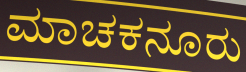
ಮಾಚಕನೂರು